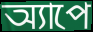
অ্যাপে